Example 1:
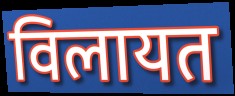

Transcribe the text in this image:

विलायत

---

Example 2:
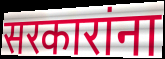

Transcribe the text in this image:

सरकारांना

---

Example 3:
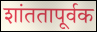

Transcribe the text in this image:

शांततापूर्वक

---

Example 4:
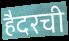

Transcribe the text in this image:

हैदरची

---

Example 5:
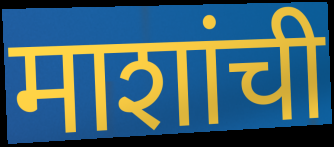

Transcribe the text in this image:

माशांची